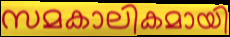
സമകാലികമായി